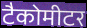
टैकोमीटर